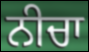
ਨੀਚਾ